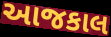
આજકાલ